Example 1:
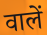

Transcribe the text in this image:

वालें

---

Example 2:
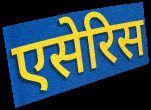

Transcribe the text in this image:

एसेरिस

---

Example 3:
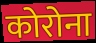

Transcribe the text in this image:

कोरोना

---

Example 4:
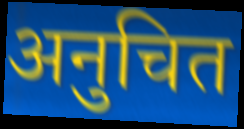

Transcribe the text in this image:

अनुचित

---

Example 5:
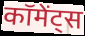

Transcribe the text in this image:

कॉमेंट्स